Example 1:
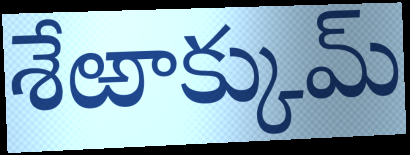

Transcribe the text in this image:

శేఱాక్కుమ్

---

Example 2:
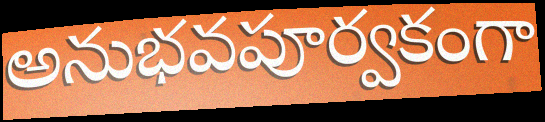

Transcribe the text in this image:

అనుభవపూర్వకంగా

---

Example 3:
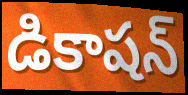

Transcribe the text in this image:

డికాషన్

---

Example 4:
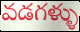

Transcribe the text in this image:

వడగళ్ళు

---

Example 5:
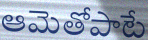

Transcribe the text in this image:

ఆమెతోపాటే